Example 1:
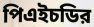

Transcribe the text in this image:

পিএইচডির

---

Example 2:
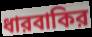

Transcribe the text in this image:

ধারবাকির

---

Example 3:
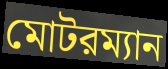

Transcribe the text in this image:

মোটরম্যান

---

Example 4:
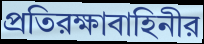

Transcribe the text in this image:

প্রতিরক্ষাবাহিনীর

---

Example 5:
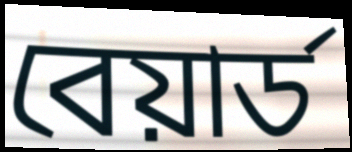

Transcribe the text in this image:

বেয়ার্ড